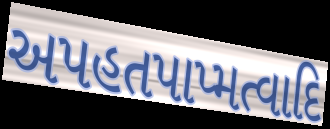
અપહતપાપ્મત્વાદિ